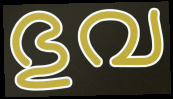
ഭുവ